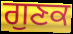
ਗੁਣਕ